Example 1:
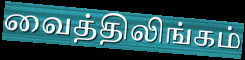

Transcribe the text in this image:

வைத்திலிங்கம்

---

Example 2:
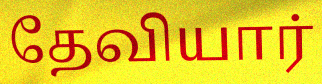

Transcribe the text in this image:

தேவியார்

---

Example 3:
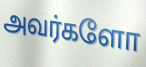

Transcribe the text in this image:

அவர்களோ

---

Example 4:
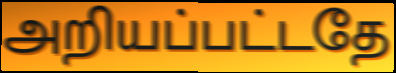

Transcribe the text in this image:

அறியப்பட்டதே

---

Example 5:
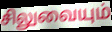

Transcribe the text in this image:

சிலுவையும்